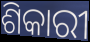
ଶିକାରୀ